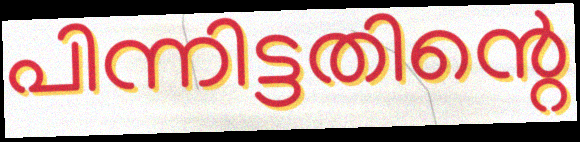
പിന്നിട്ടതിന്റെ